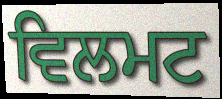
ਵਿਲਮਟ